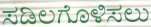
ಸಡಿಲಗೊಳಿಸಲು